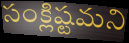
సంక్లిష్టమని